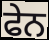
ਫੇਨ